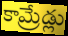
కామ్రేడ్లు